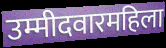
उम्मीदवारमहिला